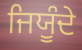
ਜਿਯੂੰਦੇ